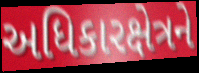
અધિકારક્ષેત્રને